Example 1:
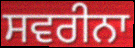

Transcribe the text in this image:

ਸਵਰੀਨਾ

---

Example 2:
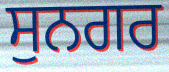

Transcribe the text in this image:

ਸੁਨਗਰ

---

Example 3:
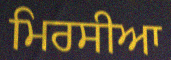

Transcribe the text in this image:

ਮਿਰਸੀਆ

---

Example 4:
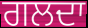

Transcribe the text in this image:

ਗਲਦਾ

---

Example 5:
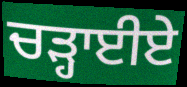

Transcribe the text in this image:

ਚੜ੍ਹਾਈਏ